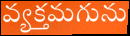
వ్యక్తమగును